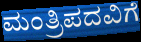
ಮಂತ್ರಿಪದವಿಗೆ